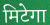
मिटेगा